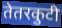
तेतरकुटी